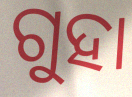
ଗୁହା